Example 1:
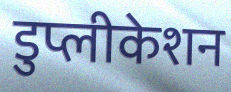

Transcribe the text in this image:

डुप्लीकेशन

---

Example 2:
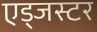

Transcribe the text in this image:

एड्जस्टर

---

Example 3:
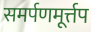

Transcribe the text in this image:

समर्पणमूर्त्तप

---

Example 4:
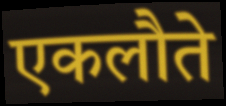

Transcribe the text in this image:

एकलौते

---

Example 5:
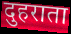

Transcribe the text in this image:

दुहराता